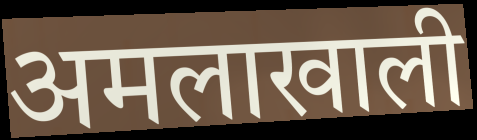
अमलाखाली